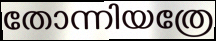
തോന്നിയത്രേ